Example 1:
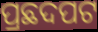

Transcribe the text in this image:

ପ୍ରଛଦପଟ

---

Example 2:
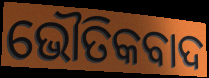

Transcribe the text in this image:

ଭୌତିକବାଦ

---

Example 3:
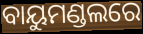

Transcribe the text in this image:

ବାୟୁମଣ୍ଡଲରେ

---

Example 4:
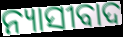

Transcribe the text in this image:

ନ୍ୟାସୀବାଦ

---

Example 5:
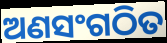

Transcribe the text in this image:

ଅଣସଂଗଠିତ